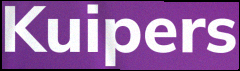
Kuipers